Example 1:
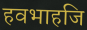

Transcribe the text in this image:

हवभाहजि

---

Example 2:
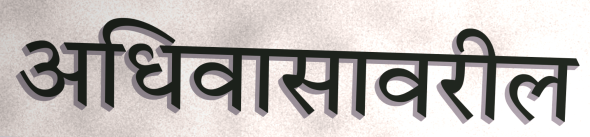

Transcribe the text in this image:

अधिवासावरील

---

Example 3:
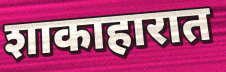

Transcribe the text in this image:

शाकाहारात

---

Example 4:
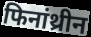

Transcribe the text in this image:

फिनांथ्रीन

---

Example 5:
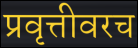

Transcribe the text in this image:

प्रवृत्तीवरच